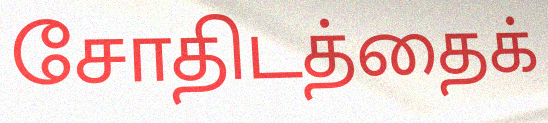
சோதிடத்தைக்